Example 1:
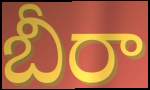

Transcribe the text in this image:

బీరా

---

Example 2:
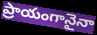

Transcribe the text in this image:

ప్రాయంగానైనా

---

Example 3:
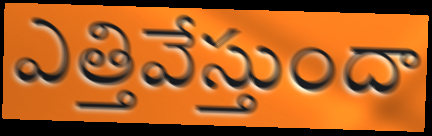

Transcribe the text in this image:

ఎత్తివేస్తుందా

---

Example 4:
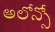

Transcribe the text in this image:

అలోన్సో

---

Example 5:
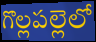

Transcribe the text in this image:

గొల్లపల్లెలో